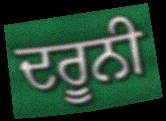
ਦਰੂਨੀ